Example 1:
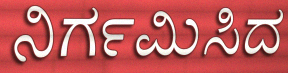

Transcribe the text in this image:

ನಿರ್ಗಮಿಸಿದ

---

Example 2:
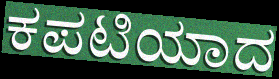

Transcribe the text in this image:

ಕಪಟಿಯಾದ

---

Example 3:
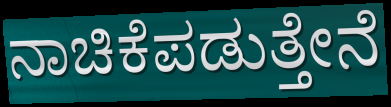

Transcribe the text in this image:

ನಾಚಿಕೆಪಡುತ್ತೇನೆ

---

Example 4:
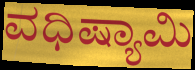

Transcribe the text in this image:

ವಧಿಷ್ಯಾಮಿ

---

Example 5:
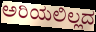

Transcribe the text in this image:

ಅರಿಯಲಿಲ್ಲದ